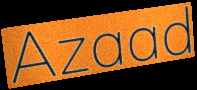
Azaad